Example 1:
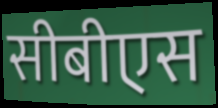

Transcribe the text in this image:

सीबीएस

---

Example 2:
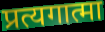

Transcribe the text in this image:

प्रत्यगात्मा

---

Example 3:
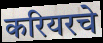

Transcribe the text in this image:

करियरचे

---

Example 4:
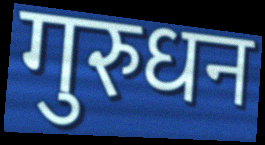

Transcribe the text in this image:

गुरुधन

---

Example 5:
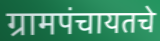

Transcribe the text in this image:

ग्रामपंचायतचे